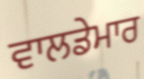
ਵਾਲਡੇਮਾਰ